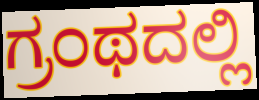
ಗ್ರಂಥದಲ್ಲಿ